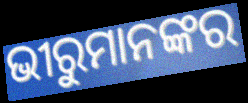
ଭୀରୁମାନଙ୍କର